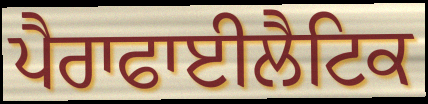
ਪੈਰਾਫਾਈਲੈਟਿਕ